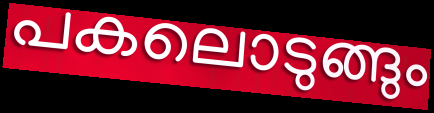
പകലൊടുങ്ങും